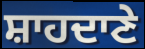
ਸ਼ਾਹਦਾਣੇ